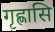
गृह्णासि